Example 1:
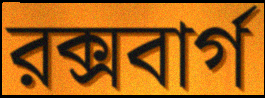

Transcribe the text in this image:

রক্সবার্গ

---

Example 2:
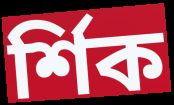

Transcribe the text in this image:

র্শিক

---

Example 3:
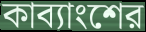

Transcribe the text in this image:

কাব্যাংশের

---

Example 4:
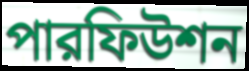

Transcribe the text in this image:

পারফিউশন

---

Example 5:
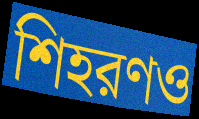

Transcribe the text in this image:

শিহরণও